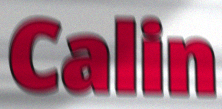
Calin